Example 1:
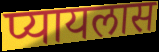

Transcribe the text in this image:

प्यायलास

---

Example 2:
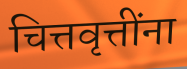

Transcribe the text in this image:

चित्तवृत्तींना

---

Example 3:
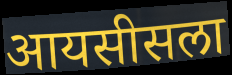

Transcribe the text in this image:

आयसीसला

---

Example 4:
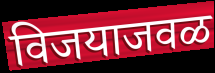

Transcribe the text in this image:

विजयाजवळ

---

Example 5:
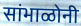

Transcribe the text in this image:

सांभाळोनी